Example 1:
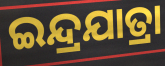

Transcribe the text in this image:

ଇନ୍ଦ୍ରଯାତ୍ରା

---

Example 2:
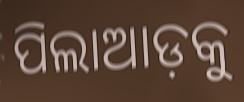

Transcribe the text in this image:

ପିଲାଆଡ଼କୁ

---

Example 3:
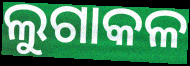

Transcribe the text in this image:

ଲୁଗାକଳ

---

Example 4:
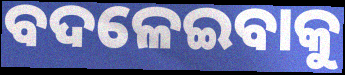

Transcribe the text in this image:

ବଦଳେଇବାକୁ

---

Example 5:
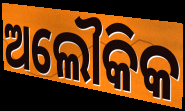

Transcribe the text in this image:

ଅଲୌକିକ